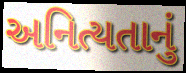
અનિત્યતાનું